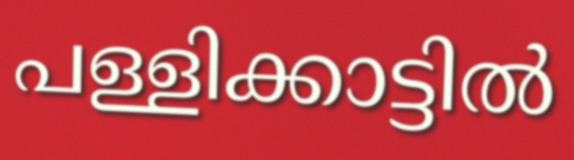
പള്ളിക്കാട്ടിൽ